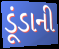
ડૂંડાની